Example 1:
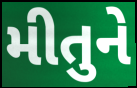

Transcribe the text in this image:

મીતુને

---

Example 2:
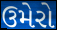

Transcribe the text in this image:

ઉમેરો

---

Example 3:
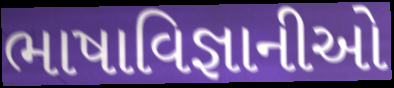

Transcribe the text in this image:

ભાષાવિજ્ઞાનીઓ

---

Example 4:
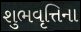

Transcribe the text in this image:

શુભવૃત્તિના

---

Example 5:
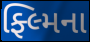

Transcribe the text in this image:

ફ્લ્મિના